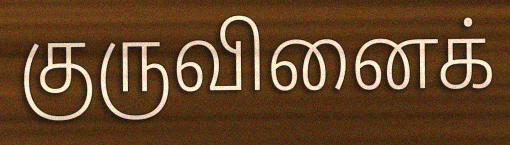
குருவினைக்